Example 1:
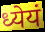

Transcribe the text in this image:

ध्येयं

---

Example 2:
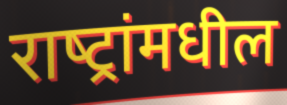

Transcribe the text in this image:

राष्ट्रांमधील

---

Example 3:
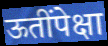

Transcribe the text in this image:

ऊतींपेक्षा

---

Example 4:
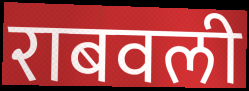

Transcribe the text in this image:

राबवली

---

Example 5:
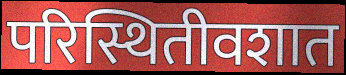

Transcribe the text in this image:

परिस्थितीवशात